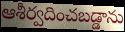
ఆశీర్వదించబడ్డాను